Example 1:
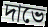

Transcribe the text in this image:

দাভে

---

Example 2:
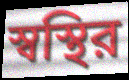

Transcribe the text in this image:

স্বস্থির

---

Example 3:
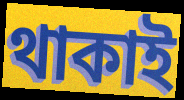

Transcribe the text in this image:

থাকাই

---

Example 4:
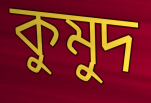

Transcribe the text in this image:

কুমুদ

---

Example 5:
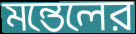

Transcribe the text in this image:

মন্তেলের